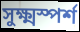
সুক্ষ্মস্পর্শ